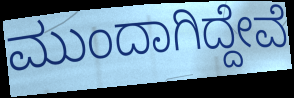
ಮುಂದಾಗಿದ್ದೇವೆ